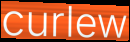
curlew